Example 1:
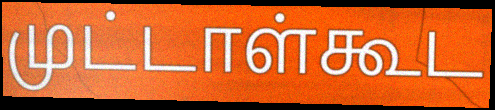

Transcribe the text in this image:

முட்டாள்கூட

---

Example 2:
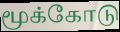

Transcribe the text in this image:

மூக்கோடு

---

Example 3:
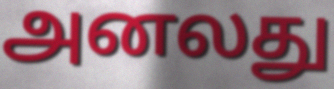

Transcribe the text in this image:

அனலது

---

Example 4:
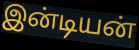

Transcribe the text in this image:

இன்டியன்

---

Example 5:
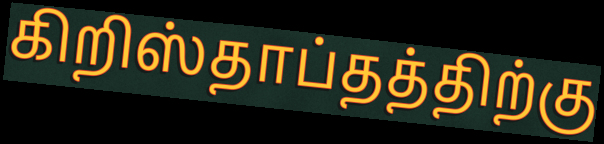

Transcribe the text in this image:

கிறிஸ்தாப்தத்திற்கு